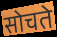
सोचते